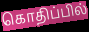
கொதிப்பில்